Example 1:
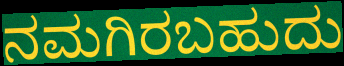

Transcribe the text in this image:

ನಮಗಿರಬಹುದು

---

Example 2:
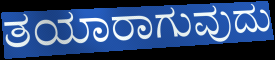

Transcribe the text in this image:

ತಯಾರಾಗುವುದು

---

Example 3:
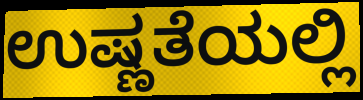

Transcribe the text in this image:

ಉಷ್ಣತೆಯಲ್ಲಿ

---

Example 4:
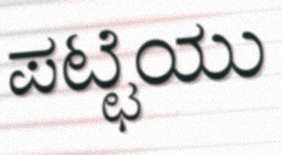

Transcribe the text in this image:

ಪಟ್ಟೆಯು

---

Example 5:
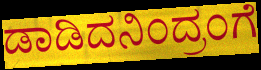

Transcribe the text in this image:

ಡಾಡಿದನಿಂದ್ರಂಗೆ